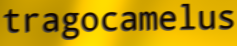
tragocamelus